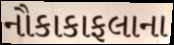
નૌકાકાફલાના